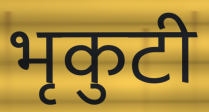
भृकुटी